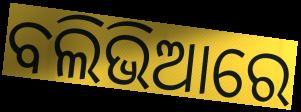
ବଲିଭିଆରେ